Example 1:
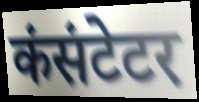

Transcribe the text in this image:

कंसंटेटर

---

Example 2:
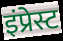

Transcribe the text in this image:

इंप्रेस्ट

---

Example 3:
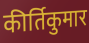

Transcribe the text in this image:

कीर्तिकुमार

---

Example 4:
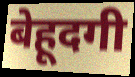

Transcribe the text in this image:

बेहूदगी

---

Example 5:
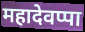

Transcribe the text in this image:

महादेवप्पा